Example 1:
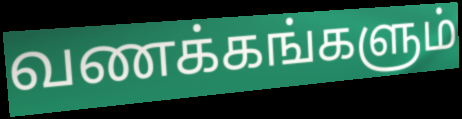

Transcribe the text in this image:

வணக்கங்களும்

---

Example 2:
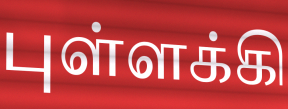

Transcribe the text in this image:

புள்ளக்கி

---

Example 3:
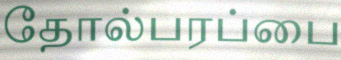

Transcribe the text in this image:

தோல்பரப்பை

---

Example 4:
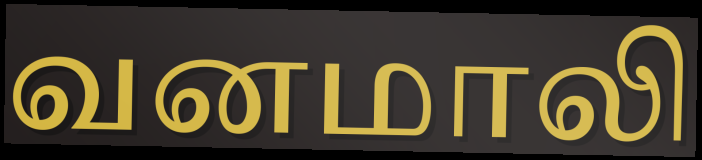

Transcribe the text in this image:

வனமாலி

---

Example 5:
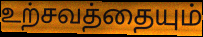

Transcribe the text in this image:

உற்சவத்தையும்